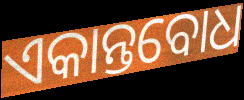
ଏକାନ୍ତବୋଧ